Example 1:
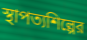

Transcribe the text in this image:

স্থাপত্যশিল্পের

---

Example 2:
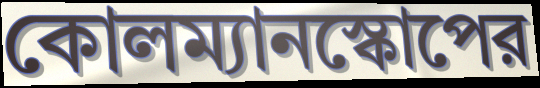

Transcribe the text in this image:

কোলম্যানস্কোপের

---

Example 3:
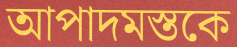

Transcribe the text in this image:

আপাদমস্তকে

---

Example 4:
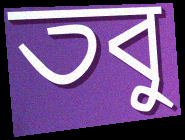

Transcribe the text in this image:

তবু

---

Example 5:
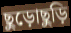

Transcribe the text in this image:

ছুড়োছুড়ি